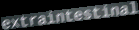
extraintestinal